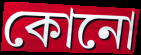
কোনো